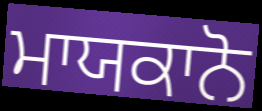
ਮਾਯਕਾਨੋ